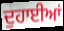
ਦੁਹਾਈਆਂ